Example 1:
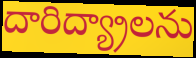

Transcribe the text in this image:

దారిద్య్రాలను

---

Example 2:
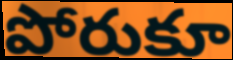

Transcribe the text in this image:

పోరుకూ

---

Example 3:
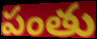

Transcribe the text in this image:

పంతు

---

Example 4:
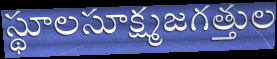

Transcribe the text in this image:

స్థూలసూక్ష్మజగత్తుల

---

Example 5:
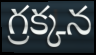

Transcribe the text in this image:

గ్రక్కన